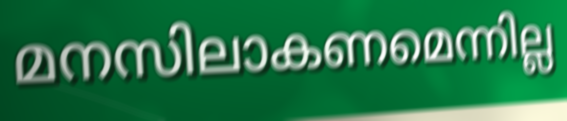
മനസിലാകണമെന്നില്ല